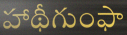
హాథీగుంఫా